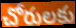
చోరులకు